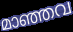
മാഞ്ഞവ